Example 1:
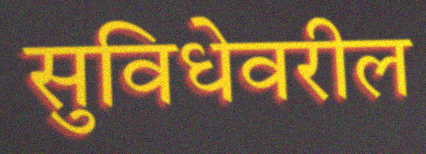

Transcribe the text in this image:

सुविधेवरील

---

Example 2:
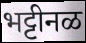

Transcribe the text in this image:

भट्टीनळ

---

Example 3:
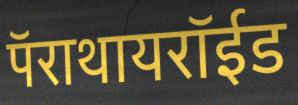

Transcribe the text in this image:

पॅराथायरॉईड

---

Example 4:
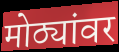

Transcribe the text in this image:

मोठ्यांवर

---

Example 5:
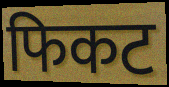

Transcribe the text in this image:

फिकट